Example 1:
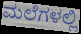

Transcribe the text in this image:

ಮಲೆಗಳಲ್ಲಿ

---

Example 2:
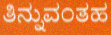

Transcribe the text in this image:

ತಿನ್ನುವಂತಹ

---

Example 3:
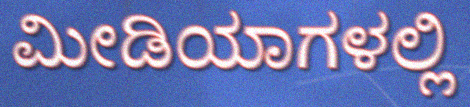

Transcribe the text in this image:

ಮೀಡಿಯಾಗಳಲ್ಲಿ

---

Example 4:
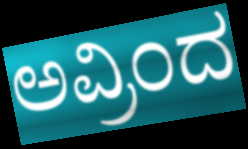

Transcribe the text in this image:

ಅವ್ರಿಂದ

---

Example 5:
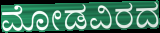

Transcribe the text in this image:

ಮೋಡವಿರದ